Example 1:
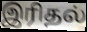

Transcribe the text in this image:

இரிதல்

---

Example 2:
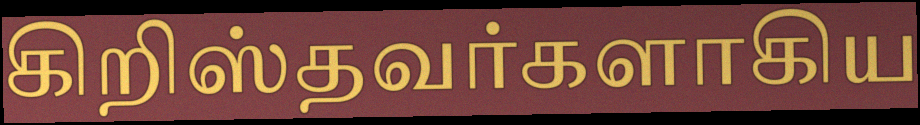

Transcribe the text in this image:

கிறிஸ்தவர்களாகிய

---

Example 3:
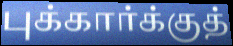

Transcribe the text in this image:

புக்கார்க்குத்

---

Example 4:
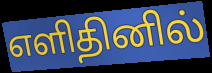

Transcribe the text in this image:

எளிதினில்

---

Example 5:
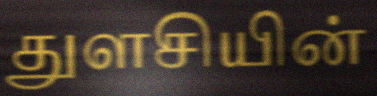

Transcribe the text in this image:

துளசியின்